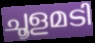
ചൂളമടി